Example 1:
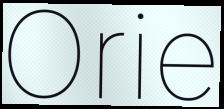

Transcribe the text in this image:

Orie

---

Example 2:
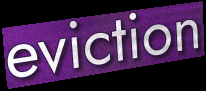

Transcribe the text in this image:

eviction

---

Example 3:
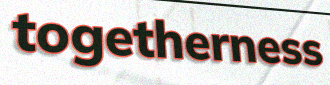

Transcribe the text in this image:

togetherness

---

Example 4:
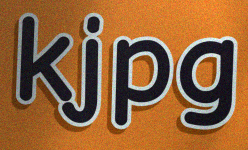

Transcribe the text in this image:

kjpg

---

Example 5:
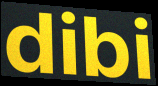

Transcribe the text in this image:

dibi